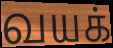
வயக்